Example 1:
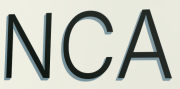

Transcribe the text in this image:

NCA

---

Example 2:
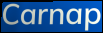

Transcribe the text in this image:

Carnap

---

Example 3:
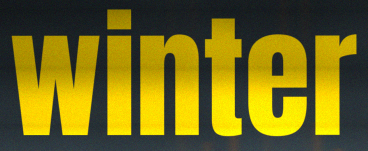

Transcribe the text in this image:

winter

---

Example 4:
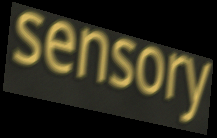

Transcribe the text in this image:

sensory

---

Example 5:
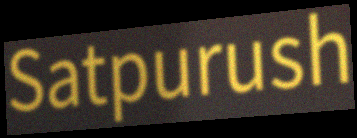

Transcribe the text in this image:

Satpurush